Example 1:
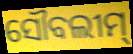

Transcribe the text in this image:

ସୌବଲୀମ୍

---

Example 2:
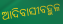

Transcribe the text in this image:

ଆଦିବାସୀବହୁଳ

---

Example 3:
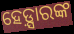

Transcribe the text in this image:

ହେଡ଼୍ସାରଙ୍କ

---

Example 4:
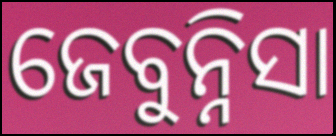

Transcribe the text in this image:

ଜେବୁନ୍ନିସା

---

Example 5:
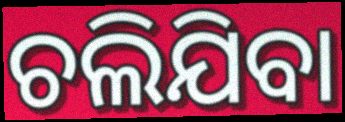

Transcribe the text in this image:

ଚଲିଯିବା